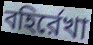
বহির্রেখা